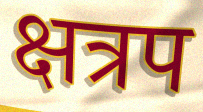
क्षत्रप